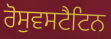
ਰੋਸੁਵਸਟੈਟਿਨ